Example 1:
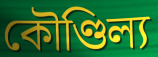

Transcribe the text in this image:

কৌণ্ডিল্য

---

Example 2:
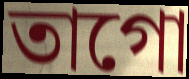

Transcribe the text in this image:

তাগো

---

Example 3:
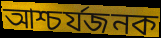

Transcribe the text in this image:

আশ্চর্যজনক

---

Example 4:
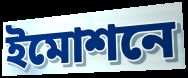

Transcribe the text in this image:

ইমোশনে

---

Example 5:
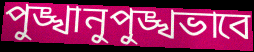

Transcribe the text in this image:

পুঙ্খানুপুঙ্খভাবে